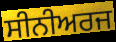
ਸੀਨੀਅਰਜ